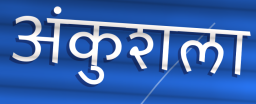
अंकुशला